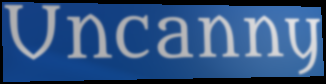
Uncanny